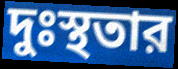
দুঃস্থতার